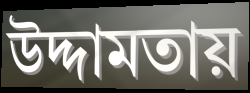
উদ্দামতায়